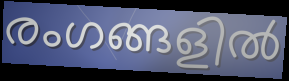
രംഗങ്ങളിൽ